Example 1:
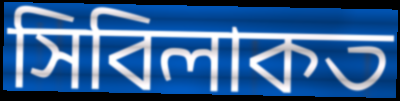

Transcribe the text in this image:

সিবিলাকত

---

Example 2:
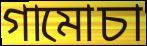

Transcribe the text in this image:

গামোচা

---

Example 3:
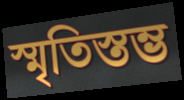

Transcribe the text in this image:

স্মৃতিস্তম্ভ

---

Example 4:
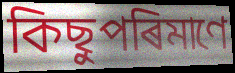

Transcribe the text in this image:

কিছুপৰিমাণে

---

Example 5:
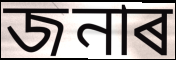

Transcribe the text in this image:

জনাৰ